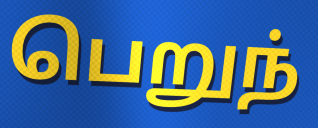
பெறுந்